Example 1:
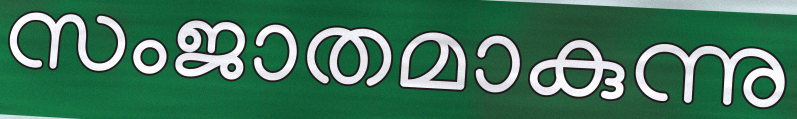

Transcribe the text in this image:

സംജാതമാകുന്നു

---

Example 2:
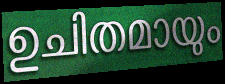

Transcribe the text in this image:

ഉചിതമായും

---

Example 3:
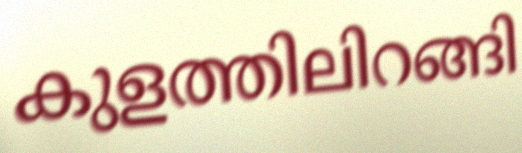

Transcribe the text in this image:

കുളത്തിലിറങ്ങി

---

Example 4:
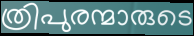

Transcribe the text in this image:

ത്രിപുരന്മാരുടെ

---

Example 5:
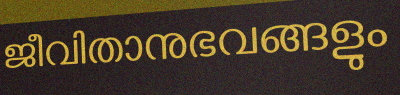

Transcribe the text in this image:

ജീവിതാനുഭവങ്ങളും